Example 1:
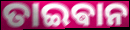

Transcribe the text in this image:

ତାଇଵାନ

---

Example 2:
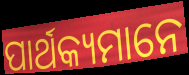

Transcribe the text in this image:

ପାର୍ଥକ୍ୟମାନେ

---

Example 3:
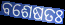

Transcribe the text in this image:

ବଶେଷତଃ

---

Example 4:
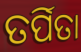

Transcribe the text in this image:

ତର୍ପିତା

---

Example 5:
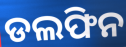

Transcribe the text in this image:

ଡଲଫିନ